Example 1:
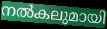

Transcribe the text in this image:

നൽകലുമായി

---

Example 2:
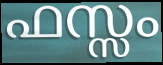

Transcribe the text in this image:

ഫസ്സം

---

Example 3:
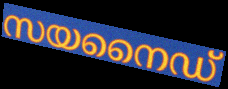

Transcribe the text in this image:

സയനൈഡ്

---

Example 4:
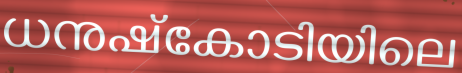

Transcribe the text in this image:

ധനുഷ്‌കോടിയിലെ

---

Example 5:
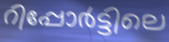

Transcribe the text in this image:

റിപ്പോർട്ടിലെ